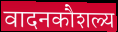
वादनकौशल्य